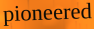
pioneered